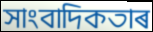
সাংবাদিকতাৰ